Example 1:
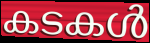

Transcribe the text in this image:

കടകൾ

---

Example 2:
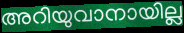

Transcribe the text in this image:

അറിയുവാനായില്ല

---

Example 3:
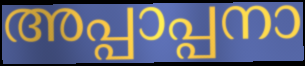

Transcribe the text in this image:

അപ്പാപ്പനാ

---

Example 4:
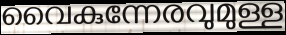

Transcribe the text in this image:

വൈകുന്നേരവുമുള്ള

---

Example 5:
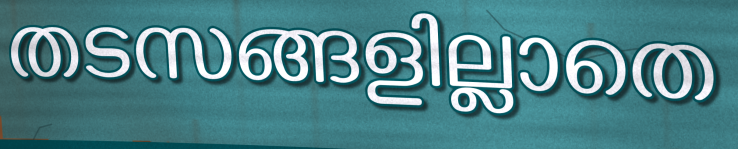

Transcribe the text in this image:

തടസങ്ങളില്ലാതെ